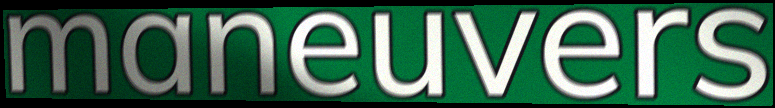
maneuvers